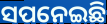
ସପନେଇଛି